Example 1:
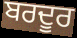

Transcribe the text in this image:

ਬਰਦੂਰ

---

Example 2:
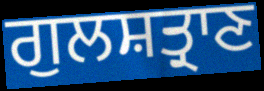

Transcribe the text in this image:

ਗੁਲਸ਼ਤ੍ਰਾਣ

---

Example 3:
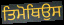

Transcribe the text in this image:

ਤਿਮੋਥਿਉਸ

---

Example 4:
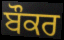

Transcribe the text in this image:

ਬੌਕਰ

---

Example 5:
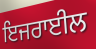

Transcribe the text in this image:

ਇਜਰਾਈਲ